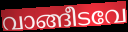
വാങ്ങീടവേ